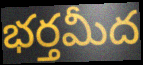
భర్తమీద